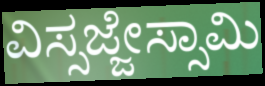
ವಿಸ್ಸಜ್ಜೇಸ್ಸಾಮಿ